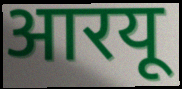
आरयू